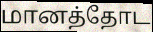
மானத்தோட